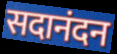
सदानंदन